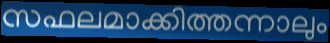
സഫലമാക്കിത്തന്നാലും